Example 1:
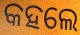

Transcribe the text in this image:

କହଲେ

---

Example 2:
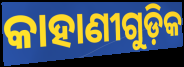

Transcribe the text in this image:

କାହାଣୀଗୁଡ଼ିକ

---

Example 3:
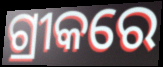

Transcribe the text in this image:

ଗ୍ରୀକରେ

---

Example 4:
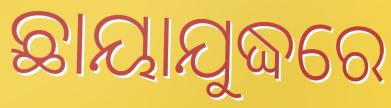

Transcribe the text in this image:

ଛାୟାଯୁଦ୍ଧରେ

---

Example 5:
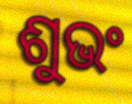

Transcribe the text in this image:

ଶୁଭଂ